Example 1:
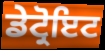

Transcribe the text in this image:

ਡੇਟ੍ਰੋਇਟ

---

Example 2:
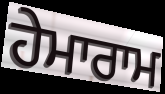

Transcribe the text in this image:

ਹੇਮਾਰਾਮ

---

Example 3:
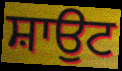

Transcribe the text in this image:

ਸ਼ਾਉਟ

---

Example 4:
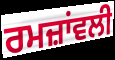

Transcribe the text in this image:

ਰਮਜ਼ਾਂਵਲੀ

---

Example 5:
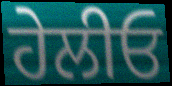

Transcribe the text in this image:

ਹੇਲੀਓ